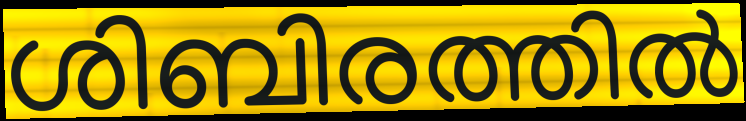
ശിബിരത്തിൽ